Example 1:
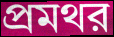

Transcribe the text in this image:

প্রমথর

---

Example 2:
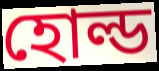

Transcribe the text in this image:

হোল্ড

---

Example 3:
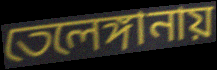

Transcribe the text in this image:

তেলেঙ্গানায়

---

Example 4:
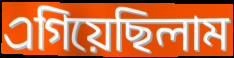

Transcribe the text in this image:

এগিয়েছিলাম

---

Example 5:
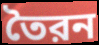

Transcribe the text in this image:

তৈরন